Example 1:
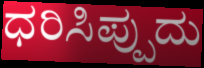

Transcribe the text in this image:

ಧರಿಸಿಪ್ಪುದು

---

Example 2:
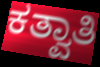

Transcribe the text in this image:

ಕತ್ವಾತಿ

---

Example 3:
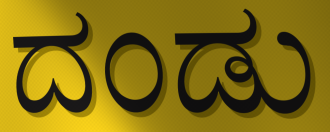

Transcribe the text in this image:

ದಂಡು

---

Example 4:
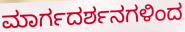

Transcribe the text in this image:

ಮಾರ್ಗದರ್ಶನಗಳಿಂದ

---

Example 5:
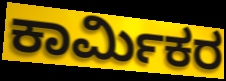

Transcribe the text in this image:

ಕಾರ್ಮಿಕರ